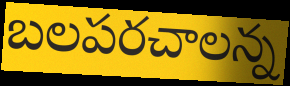
బలపరచాలన్న